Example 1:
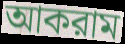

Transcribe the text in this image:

আকরাম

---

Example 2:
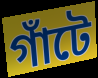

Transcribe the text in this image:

গাঁটে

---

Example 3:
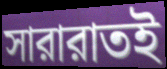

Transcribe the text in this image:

সারারাতই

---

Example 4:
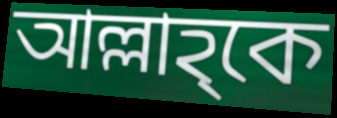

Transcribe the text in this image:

আল্লাহ্কে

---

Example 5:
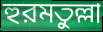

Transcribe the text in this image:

হুরমতুল্লা